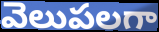
వెలుపలగా